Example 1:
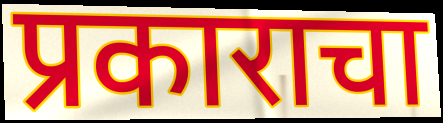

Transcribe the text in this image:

प्रकाराचा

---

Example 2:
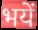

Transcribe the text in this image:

भयें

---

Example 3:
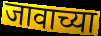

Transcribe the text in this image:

जावाच्या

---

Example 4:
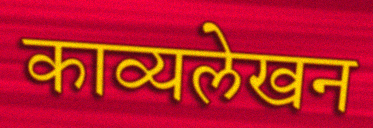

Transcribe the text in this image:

काव्यलेखन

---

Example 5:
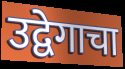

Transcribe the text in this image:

उद्वेगाचा